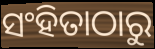
ସଂହିତାଠାରୁ